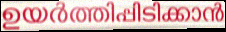
ഉയർത്തിപ്പിടിക്കാൻ